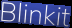
Blinkit